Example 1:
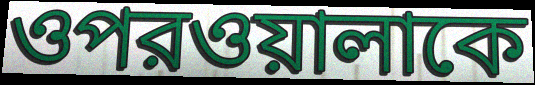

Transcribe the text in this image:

ওপরওয়ালাকে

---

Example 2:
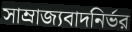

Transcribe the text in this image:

সাম্রাজ্যবাদনির্ভর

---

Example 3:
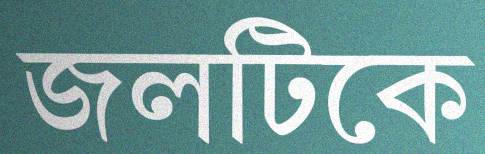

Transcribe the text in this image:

জলটিকে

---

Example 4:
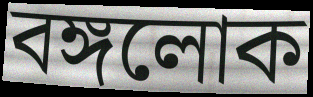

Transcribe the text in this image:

বঙ্গলোক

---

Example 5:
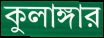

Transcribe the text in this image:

কুলাঙ্গার